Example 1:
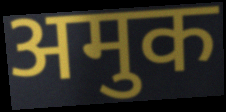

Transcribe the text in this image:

अमुक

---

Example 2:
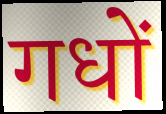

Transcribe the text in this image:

गधों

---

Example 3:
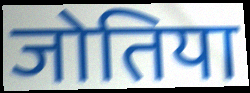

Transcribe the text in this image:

जोतिया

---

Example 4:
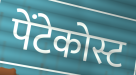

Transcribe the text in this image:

पेंटेकोस्ट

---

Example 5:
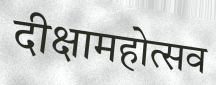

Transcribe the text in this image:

दीक्षामहोत्सव